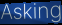
Asking